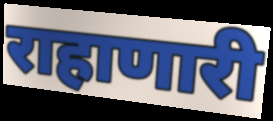
राहाणारी